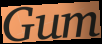
Gum